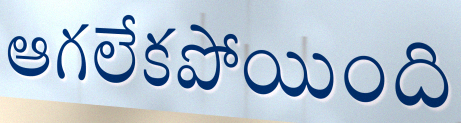
ఆగలేకపోయింది